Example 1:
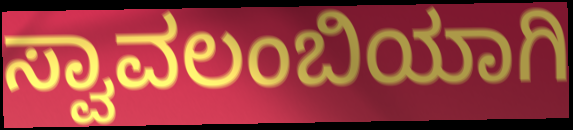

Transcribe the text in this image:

ಸ್ವಾವಲಂಬಿಯಾಗಿ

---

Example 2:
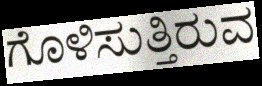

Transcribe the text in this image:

ಗೊಳಿಸುತ್ತಿರುವ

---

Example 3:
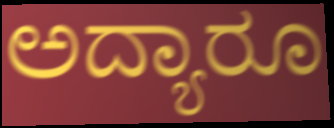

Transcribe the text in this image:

ಅದ್ಯಾರೂ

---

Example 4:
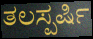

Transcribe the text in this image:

ತಲಸ್ಪರ್ಷಿ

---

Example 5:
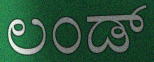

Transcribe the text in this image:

ಲಂಡ್